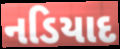
નડિયાદ